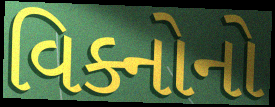
વિક્નોનો